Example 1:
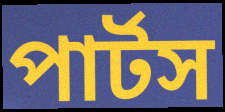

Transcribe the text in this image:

পার্টস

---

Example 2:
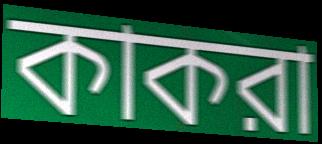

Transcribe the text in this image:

কাকরা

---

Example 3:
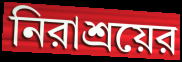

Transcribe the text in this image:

নিরাশ্রয়ের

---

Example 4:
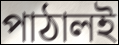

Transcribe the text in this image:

পাঠালই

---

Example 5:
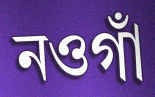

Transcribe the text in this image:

নওগাঁ